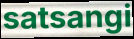
satsangi